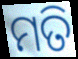
ମତି